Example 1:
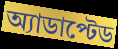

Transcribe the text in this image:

অ্যাডাপ্টেড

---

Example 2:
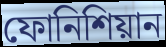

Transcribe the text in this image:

ফোনিশিয়ান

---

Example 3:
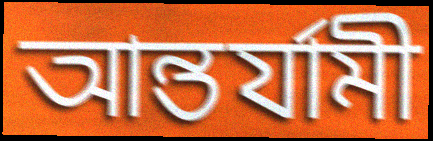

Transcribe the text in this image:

আন্তর্যামী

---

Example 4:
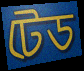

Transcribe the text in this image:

টেড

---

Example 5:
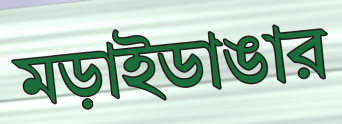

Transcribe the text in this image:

মড়াইডাঙার